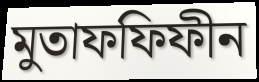
মুতাফফিফীন